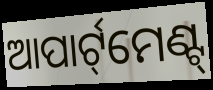
ଆପାର୍ଟ୍‌ମେଣ୍ଟ୍